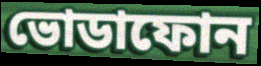
ভোডাফোন